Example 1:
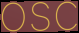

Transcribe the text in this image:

osc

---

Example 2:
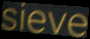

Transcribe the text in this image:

sieve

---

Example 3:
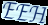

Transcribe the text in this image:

EEH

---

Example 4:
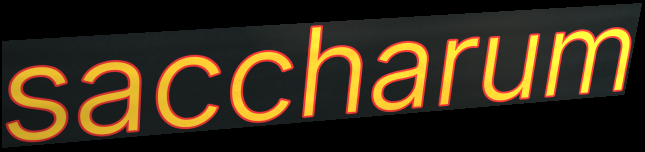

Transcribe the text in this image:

saccharum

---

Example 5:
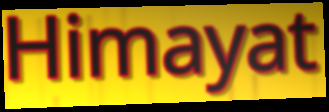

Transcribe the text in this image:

Himayat